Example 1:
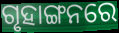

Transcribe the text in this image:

ଗୃହାଙ୍ଗନରେ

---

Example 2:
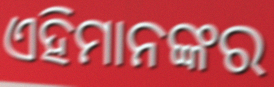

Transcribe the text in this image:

ଏହିମାନଙ୍କର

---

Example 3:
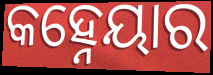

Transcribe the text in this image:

କହ୍ନେୟାର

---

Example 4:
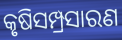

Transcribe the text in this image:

କୃଷିସମ୍ପ୍ରସାରଣ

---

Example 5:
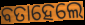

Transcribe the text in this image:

ବତାହେଲେ